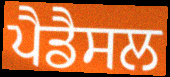
ਪੈਡੈਸਲ